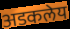
अडकलेय